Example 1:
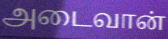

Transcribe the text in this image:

அடைவான்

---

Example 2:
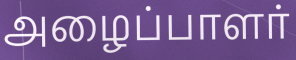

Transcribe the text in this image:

அழைப்பாளர்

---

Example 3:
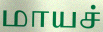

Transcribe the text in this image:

மாயச்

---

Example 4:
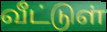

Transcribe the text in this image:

வீட்டுள்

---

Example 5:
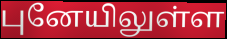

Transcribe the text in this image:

புனேயிலுள்ள